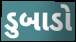
ડુબાડો